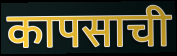
कापसाची